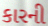
કારની